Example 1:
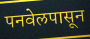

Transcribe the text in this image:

पनवेलपासून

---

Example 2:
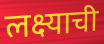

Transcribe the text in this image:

लक्ष्याची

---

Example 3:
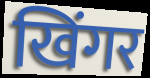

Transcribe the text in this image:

खिंगर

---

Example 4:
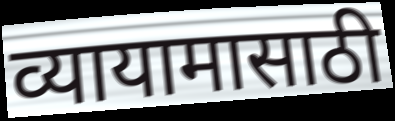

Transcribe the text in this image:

व्यायामासाठी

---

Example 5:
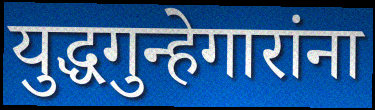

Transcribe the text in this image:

युद्धगुन्हेगारांना